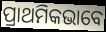
ପ୍ରାଥମିକଭାବେ